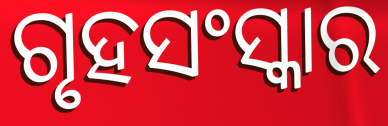
ଗୃହସଂସ୍କାର